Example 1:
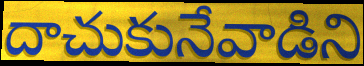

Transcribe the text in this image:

దాచుకునేవాడిని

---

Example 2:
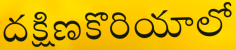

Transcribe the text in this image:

దక్షిణకొరియాలో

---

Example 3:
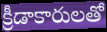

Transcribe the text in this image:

క్రీడాకారులతో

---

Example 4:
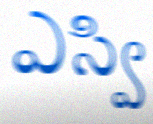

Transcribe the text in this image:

ఎస్వి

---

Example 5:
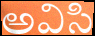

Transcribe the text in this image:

అవిసి